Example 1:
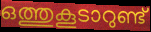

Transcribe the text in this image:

ഒത്തുകൂടാറുണ്ട്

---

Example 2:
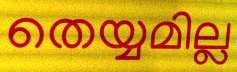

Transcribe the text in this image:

തെയ്യമില്ല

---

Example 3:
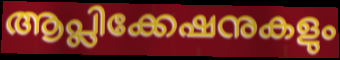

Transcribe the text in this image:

ആപ്ലിക്കേഷനുകളും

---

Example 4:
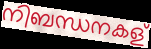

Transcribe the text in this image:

നിബന്ധനകള്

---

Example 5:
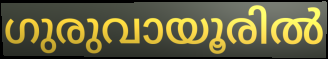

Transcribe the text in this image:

ഗുരുവായൂരിൽ